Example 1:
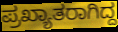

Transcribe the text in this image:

ಪ್ರಖ್ಯಾತರಾಗಿದ್ದ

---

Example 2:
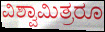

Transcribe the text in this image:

ವಿಶ್ವಾಮಿತ್ರರೂ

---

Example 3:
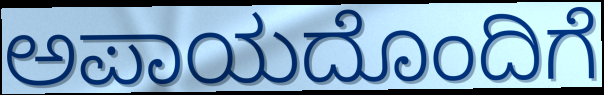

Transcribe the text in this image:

ಅಪಾಯದೊಂದಿಗೆ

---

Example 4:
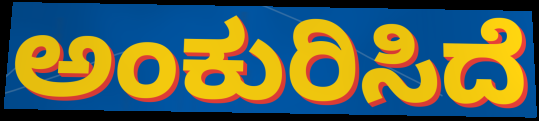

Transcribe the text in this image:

ಅಂಕುರಿಸಿದೆ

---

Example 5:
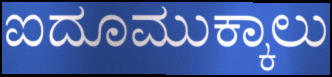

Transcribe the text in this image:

ಐದೂಮುಕ್ಕಾಲು